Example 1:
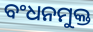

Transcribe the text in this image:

ବଂଧନମୁକ୍ତ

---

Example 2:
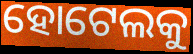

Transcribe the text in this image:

ହୋଟେଲକୁ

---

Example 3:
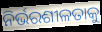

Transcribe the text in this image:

ନିର୍ଭରଶୀଳତାକୁ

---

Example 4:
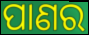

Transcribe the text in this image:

ପାଣର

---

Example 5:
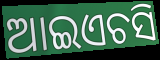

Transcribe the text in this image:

ଆଇଏଚସି